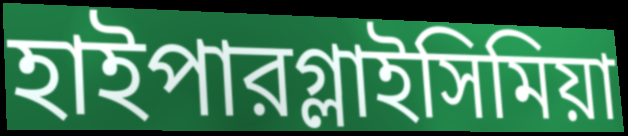
হাইপারগ্লাইসিমিয়া